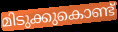
മിടുക്കുകൊണ്ട്